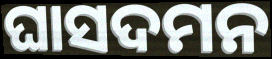
ଘାସଦମନ